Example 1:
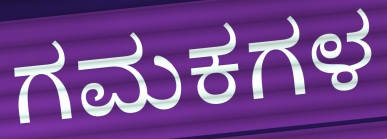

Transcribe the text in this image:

ಗಮಕಗಳ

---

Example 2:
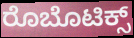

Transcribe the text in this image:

ರೊಬೊಟಿಕ್ಸ್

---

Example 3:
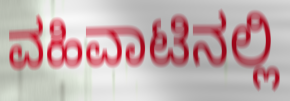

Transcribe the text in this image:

ವಹಿವಾಟಿನಲ್ಲಿ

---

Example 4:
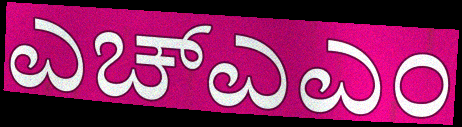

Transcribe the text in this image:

ಎಚ್ಎಎಂ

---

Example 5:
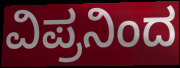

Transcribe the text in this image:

ವಿಪ್ರನಿಂದ